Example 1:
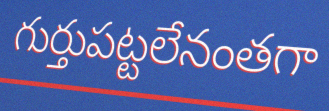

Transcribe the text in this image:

గుర్తుపట్టలేనంతగా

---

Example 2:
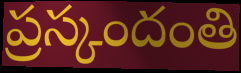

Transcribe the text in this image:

ప్రస్కందంతి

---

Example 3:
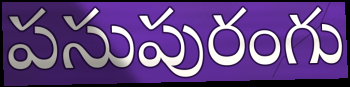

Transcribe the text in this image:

పసుపురంగు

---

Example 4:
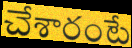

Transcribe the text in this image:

చేశారంటే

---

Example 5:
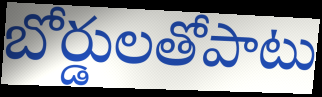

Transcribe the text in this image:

బోర్డులతోపాటు